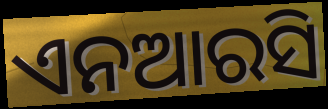
ଏନଆରସି